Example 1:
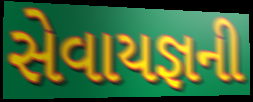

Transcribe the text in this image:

સેવાયજ્ઞની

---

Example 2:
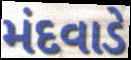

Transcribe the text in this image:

મંદવાડે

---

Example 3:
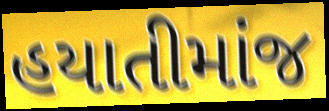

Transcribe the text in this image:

હયાતીમાંજ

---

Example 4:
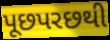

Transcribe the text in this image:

પૂછપરછથી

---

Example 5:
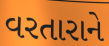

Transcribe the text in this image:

વરતારાને